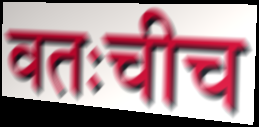
वतःचीच